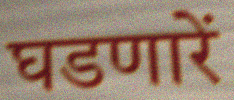
घडणारें